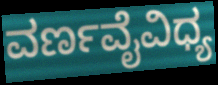
ವರ್ಣವೈವಿಧ್ಯ